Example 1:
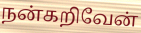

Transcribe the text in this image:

நன்கறிவேன்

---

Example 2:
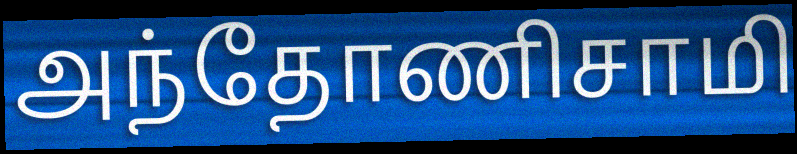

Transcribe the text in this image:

அந்தோணிசாமி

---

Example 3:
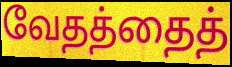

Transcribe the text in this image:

வேதத்தைத்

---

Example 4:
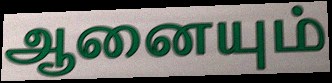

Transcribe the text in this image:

ஆனையும்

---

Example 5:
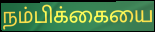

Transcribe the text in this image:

நம்பிக்கையை